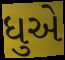
ધુએ